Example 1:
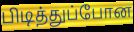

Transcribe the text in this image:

பிடித்துப்போன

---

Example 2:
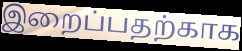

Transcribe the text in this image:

இறைப்பதற்காக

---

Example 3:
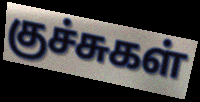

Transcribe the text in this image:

குச்சுகள்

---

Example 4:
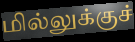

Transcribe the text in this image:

மில்லுக்குச்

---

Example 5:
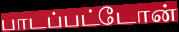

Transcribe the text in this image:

பாடப்பட்டோன்